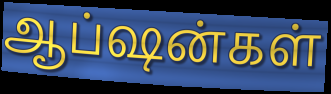
ஆப்ஷன்கள்